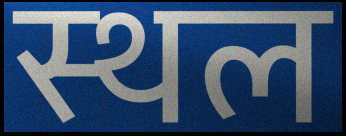
स्थल